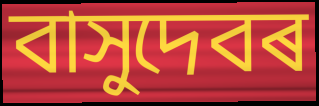
বাসুদেবৰ